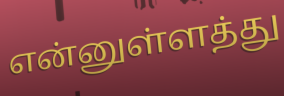
என்னுள்ளத்து